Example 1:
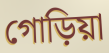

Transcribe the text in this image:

গোড়িয়া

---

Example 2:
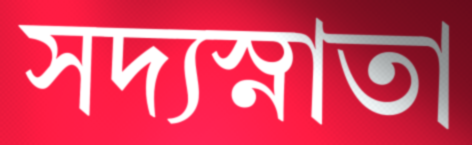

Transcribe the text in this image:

সদ্যস্নাতা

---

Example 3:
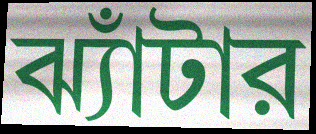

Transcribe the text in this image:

ঝ্যাঁটার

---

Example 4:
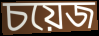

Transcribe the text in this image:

চয়েজ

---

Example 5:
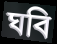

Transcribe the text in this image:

ঘবি